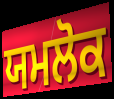
ਯਮਲੋਕ